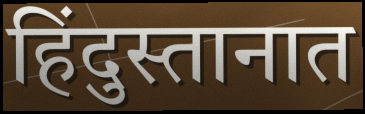
हिंदुस्तानात